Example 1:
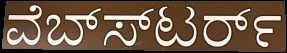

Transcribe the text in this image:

ವೆಬ್ಸ್‍ಟರ್ರ್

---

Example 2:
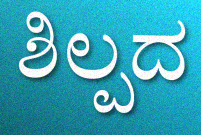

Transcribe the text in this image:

ಶಿಲ್ಪದ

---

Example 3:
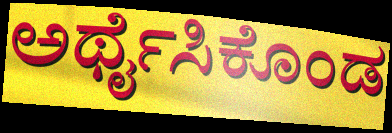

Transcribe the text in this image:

ಅರ್ಥೈಸಿಕೊಂಡ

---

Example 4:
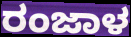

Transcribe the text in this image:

ರಂಜಾಳ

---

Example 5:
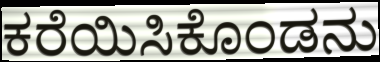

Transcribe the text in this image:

ಕರೆಯಿಸಿಕೊಂಡನು